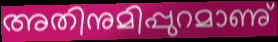
അതിനുമിപ്പുറമാണു്